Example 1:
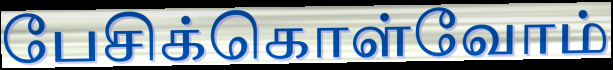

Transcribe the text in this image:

பேசிக்கொள்வோம்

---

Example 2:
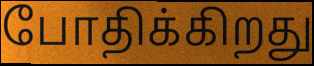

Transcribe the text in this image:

போதிக்கிறது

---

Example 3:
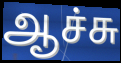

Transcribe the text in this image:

ஆச்சு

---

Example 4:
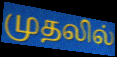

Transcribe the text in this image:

முதலில்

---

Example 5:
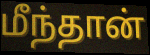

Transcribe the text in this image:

மீந்தான்